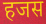
हजस